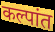
कल्पांत